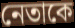
নেতাকে